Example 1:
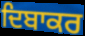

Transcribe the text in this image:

ਦਿਬਾਕਰ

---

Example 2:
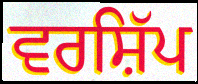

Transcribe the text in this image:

ਵਰਸ਼ਿੱਪ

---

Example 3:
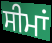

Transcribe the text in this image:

ਸੀਮਾਂ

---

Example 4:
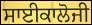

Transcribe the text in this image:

ਸਾਈਕਾਲੋਜੀ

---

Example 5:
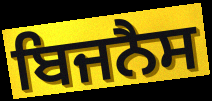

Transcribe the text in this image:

ਬਿਜਨੈਸ